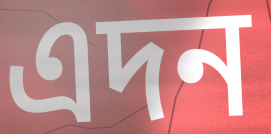
এদন